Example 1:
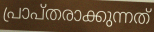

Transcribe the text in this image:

പ്രാപ്തരാക്കുന്നത്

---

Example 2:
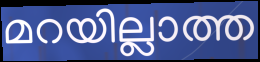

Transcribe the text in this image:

മറയില്ലാത്ത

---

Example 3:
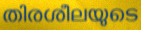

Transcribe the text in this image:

തിരശീലയുടെ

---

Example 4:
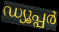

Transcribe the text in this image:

ഡ്യൂപ്പർ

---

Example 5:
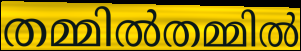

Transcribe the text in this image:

തമ്മിൽതമ്മിൽ